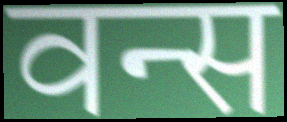
वन्स